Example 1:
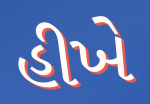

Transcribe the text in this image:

હીખે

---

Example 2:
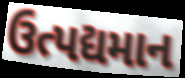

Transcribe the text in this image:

ઉત્પદ્યમાન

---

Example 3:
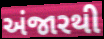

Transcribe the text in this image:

અંજારથી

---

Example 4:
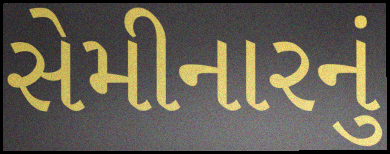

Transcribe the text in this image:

સેમીનારનું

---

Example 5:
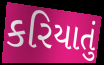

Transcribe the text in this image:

કરિયાતું